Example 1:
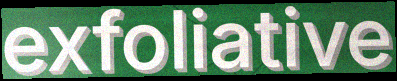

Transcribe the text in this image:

exfoliative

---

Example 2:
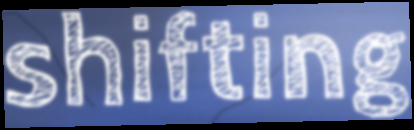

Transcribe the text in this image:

shifting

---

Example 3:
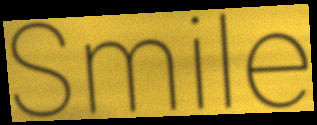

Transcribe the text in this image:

Smile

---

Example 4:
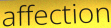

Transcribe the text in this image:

affection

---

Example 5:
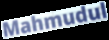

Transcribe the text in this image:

Mahmudul